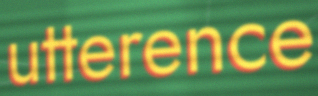
utterence